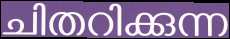
ചിതറിക്കുന്ന